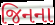
જિનના